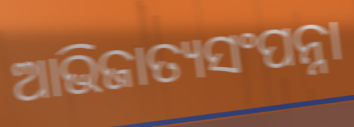
ଆଭିଜାତ୍ୟସଂପନ୍ନା